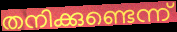
തനിക്കുണ്ടെന്ന്